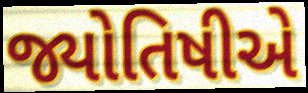
જ્યોતિષીએ